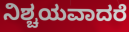
ನಿಶ್ಚಯವಾದರೆ